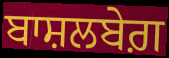
ਬਾਸ਼ਲਬੇਗ਼